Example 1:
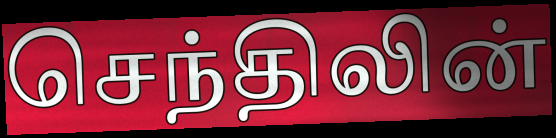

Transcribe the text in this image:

செந்திலின்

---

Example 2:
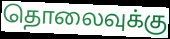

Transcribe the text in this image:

தொலைவுக்கு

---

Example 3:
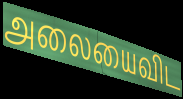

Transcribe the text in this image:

அலையைவிட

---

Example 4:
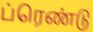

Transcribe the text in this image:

ப்ரெண்டு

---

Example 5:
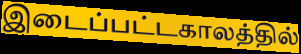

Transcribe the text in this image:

இடைப்பட்டகாலத்தில்